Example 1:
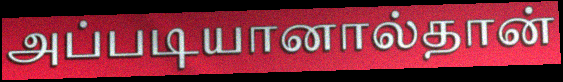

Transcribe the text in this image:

அப்படியானால்தான்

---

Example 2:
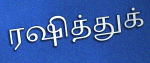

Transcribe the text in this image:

ரஷித்துக்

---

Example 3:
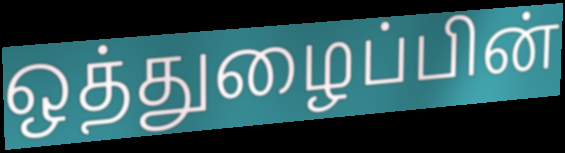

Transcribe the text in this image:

ஒத்துழைப்பின்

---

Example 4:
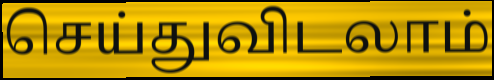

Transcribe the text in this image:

செய்துவிடலாம்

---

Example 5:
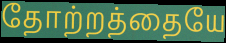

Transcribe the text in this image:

தோற்றத்தையே